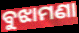
ବୁଝାମଣା